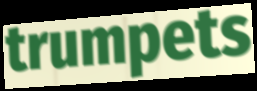
trumpets